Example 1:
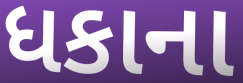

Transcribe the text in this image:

ધકાના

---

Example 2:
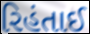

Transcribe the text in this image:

રિહંતાઈ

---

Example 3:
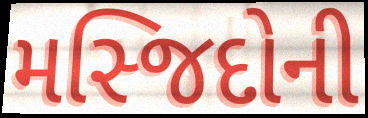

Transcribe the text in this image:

મસ્જિદોની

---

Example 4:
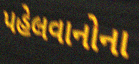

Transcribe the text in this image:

પહેલવાનોના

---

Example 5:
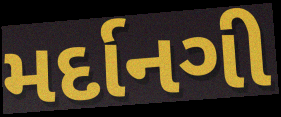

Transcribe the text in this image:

મર્દાનગી